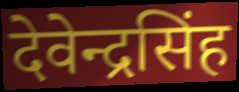
देवेन्द्रसिंह